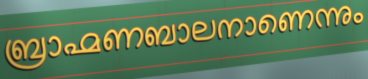
ബ്രാഹ്മണബാലനാണെന്നും